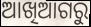
ଆଖିଆଗରୁ